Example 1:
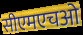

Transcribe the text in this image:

सीएमएचओ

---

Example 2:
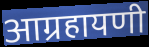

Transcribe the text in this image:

आग्रहायणी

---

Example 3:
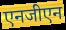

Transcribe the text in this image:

एनजीएन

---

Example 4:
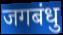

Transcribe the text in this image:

जगबंधु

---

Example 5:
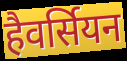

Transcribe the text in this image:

हैवर्सियन